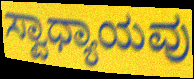
ಸ್ವಾಧ್ಯಾಯವು